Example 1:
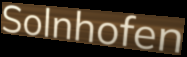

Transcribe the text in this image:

Solnhofen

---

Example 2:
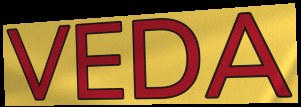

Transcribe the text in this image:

VEDA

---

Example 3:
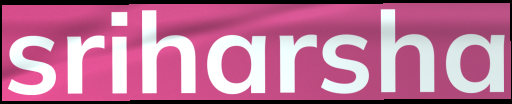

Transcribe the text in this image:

sriharsha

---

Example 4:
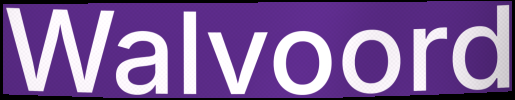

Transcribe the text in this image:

Walvoord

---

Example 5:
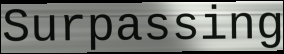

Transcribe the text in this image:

Surpassing